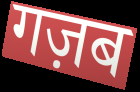
गज़ब